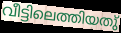
വീട്ടിലെത്തിയതു്